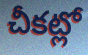
చీకట్లో